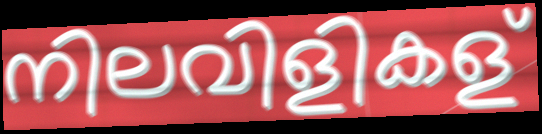
നിലവിളികള്